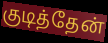
குடித்தேன்